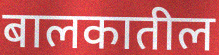
बालकातील